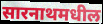
सारनाथमधील